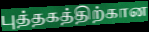
புத்தகத்திற்கான